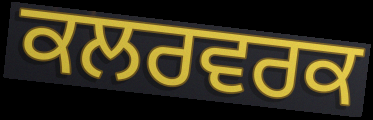
ਕਲਰਵਰਕ